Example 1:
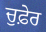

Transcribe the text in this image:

ਚੁਫ਼ੇਰ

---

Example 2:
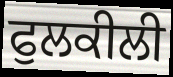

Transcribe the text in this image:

ਫੁਲਕੀਲੀ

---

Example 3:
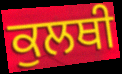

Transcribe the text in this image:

ਕੁਲਥੀ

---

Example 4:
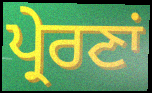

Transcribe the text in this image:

ਪ੍ਰੇਰਣਾਂ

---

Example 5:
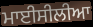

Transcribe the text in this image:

ਮਾਈਸੀਲੀਆ